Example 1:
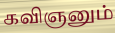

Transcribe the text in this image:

கவிஞனும்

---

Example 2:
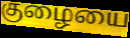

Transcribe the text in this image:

குழையை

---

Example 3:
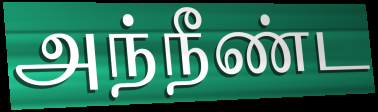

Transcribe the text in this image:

அந்நீண்ட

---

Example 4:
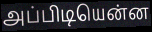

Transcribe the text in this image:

அப்பிடியென்ன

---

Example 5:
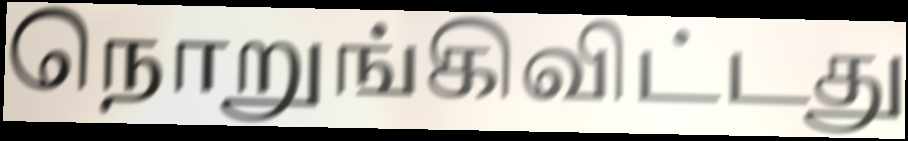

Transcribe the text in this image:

நொறுங்கிவிட்டது